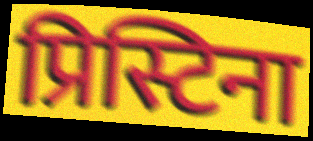
प्रिस्टिना